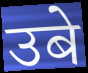
उबे